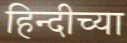
हिन्दीच्या